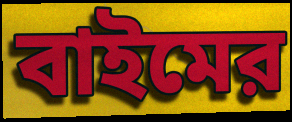
বাইমের